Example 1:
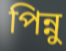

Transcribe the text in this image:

পিন্নু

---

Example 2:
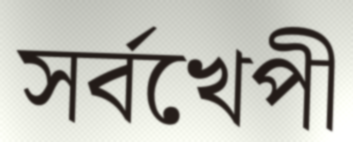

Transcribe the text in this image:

সর্বখেপী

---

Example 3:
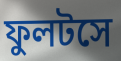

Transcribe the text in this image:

ফুলটসে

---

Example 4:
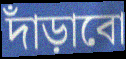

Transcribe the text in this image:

দাঁড়াবো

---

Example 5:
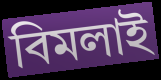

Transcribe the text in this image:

বিমলাই